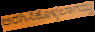
ಅರಗಿಸಿಕೊಳ್ಳಲಾಗದ್ದು